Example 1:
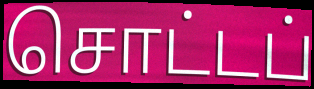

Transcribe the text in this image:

சொட்டப்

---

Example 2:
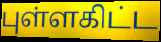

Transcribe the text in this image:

புள்ளகிட்ட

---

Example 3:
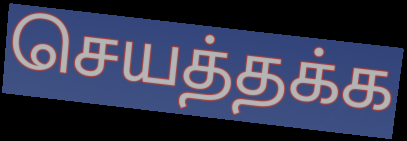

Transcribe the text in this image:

செயத்தக்க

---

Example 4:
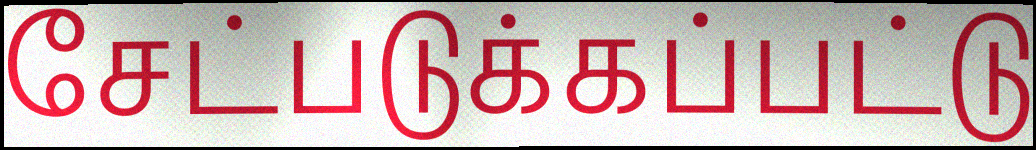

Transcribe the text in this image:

சேட்படுக்கப்பட்டு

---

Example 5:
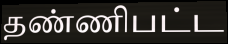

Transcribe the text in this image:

தண்ணிபட்ட